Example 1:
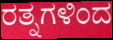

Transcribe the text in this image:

ರತ್ನಗಳಿಂದ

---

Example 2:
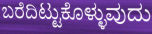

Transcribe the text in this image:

ಬರೆದಿಟ್ಟುಕೊಳ್ಳುವುದು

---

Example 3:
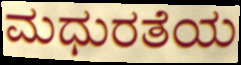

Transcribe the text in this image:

ಮಧುರತೆಯ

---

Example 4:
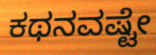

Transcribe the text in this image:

ಕಥನವಷ್ಟೇ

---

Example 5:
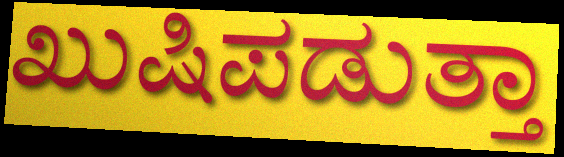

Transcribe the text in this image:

ಖುಷಿಪಡುತ್ತಾ